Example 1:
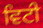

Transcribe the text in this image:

ਵਿਟੀ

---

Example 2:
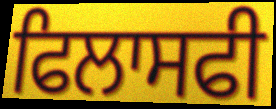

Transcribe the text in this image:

ਫਿਲਾਸਫੀ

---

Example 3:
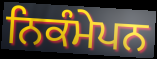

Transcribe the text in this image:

ਨਿਕੰਮੇਪਨ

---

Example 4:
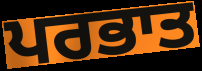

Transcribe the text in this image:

ਪਰਭਾਤ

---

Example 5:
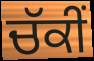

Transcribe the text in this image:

ਚੱਕੀਂ